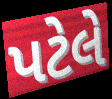
પટેલે